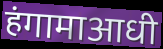
हंगामाआधी